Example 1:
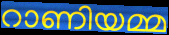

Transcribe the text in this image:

റാണിയമ്മ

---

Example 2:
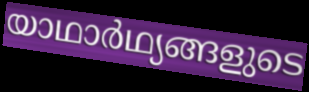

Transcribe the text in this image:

യാഥാർഥ്യങ്ങളുടെ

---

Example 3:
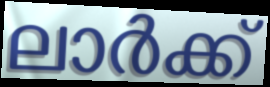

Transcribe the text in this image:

ലാർക്ക്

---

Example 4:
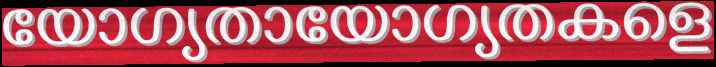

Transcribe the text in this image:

യോഗ്യതായോഗ്യതകളെ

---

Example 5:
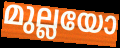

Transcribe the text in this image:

മുല്ലയോ